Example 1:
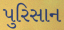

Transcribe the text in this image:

પુરિસાન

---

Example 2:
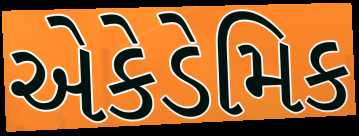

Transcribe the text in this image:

એકેડેમિક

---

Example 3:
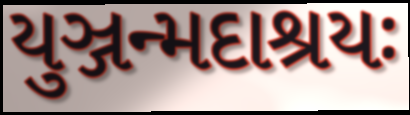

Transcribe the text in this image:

યુઞ્જન્મદાશ્રયઃ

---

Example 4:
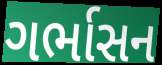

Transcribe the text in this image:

ગર્ભાસન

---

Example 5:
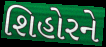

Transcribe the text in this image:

શિહોરને